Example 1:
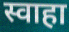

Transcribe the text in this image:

स्वाहा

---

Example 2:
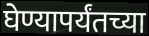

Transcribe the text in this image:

घेण्यापर्यंतच्या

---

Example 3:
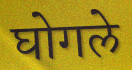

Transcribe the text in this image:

घोगले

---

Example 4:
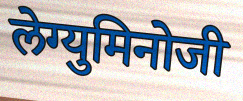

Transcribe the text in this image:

लेग्युमिनोजी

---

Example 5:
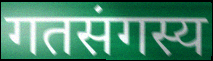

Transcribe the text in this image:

गतसंगस्य